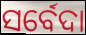
ସର୍ବେଦା